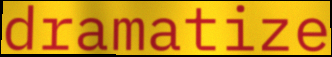
dramatize